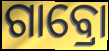
ଗାବ୍ରୋ